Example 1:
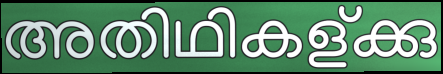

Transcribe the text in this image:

അതിഥികള്ക്കു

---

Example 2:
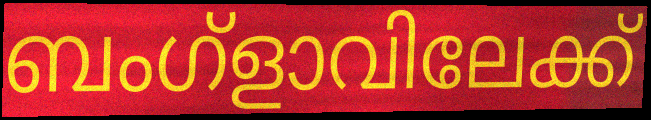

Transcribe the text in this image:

ബംഗ്ളാവിലേക്ക്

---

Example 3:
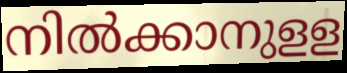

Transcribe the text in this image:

നിൽക്കാനുളള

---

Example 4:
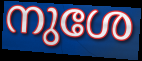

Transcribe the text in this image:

നുശേ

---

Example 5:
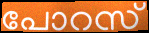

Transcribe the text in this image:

പോറസ്